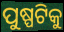
ପୁଷ୍ପଟିକୁ